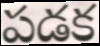
పడక